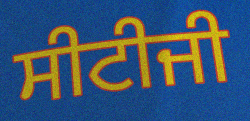
ਸੀਟੀਜੀ